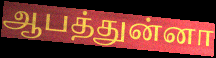
ஆபத்துன்னா